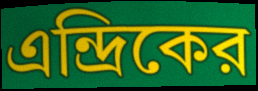
এন্দ্রিকের